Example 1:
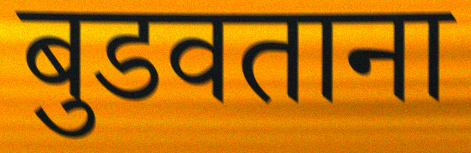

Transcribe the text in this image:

बुडवताना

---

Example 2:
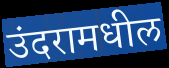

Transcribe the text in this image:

उंदरामधील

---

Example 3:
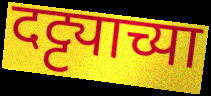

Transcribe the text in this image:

दट्ट्याच्या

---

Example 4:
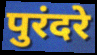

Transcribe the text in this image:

पुरंदरे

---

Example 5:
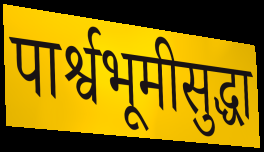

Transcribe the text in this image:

पार्श्वभूमीसुद्धा